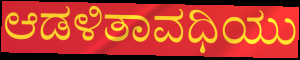
ಆಡಳಿತಾವಧಿಯು